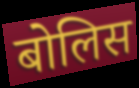
बोलिस